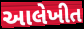
આલેખીત